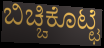
ಬಿಚ್ಚಿಕೊಟ್ಟೆ